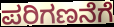
ಪರಿಗಣನೆಗೆ